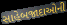
સાહેબજાદાઓની